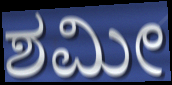
ಶಮೀ